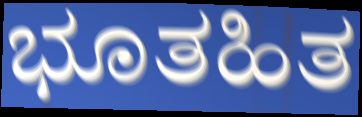
ಭೂತಹಿತ